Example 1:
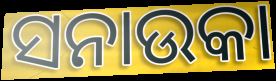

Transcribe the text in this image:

ସନାଉକା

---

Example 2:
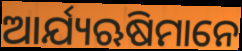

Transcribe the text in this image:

ଆର୍ଯ୍ୟଋଷିମାନେ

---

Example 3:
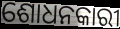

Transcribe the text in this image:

ଶୋଧନକାରୀ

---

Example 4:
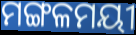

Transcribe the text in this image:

ମଙ୍ଗଳମୟୀ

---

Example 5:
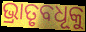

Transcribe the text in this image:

ଭ୍ରାତୃବଧୂକୁ